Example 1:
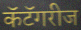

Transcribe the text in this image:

कॅटॅगरीज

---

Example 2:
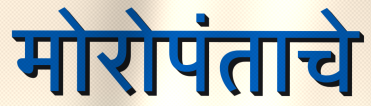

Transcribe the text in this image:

मोरोपंताचे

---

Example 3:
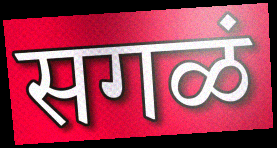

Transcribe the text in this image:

सगळं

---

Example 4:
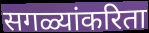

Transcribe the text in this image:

सगळ्यांकरिता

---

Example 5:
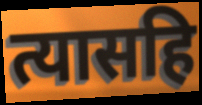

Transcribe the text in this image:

त्यासहि